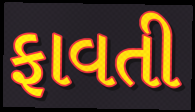
ફાવતી